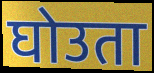
घोउता